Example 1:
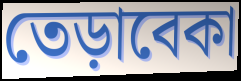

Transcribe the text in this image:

তেড়াবেকা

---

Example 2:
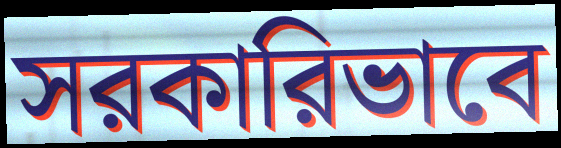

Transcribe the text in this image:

সরকারিভাবে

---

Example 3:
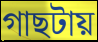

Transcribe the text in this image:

গাছটায়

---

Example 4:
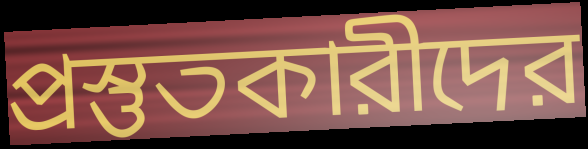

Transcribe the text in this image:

প্রস্তুতকারীদের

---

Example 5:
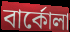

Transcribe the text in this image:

বার্কোলা